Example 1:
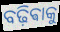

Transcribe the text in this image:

ବଢ଼ିଵାକୁ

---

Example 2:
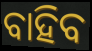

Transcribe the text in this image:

ବାହିବ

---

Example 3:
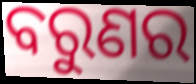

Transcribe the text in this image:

ବରୁଣର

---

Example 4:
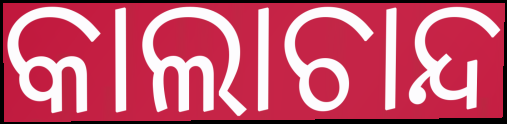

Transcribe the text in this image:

କାଲାଚାନ୍ଦ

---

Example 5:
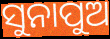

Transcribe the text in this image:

ସୁନାପୁଅ